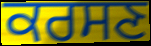
ਕਰਸਣ